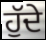
ਹੁੱਦੇ